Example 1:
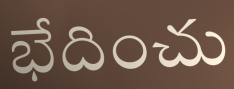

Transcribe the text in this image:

భేదించు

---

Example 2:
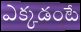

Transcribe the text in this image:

ఎక్కడంటే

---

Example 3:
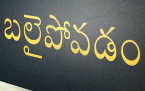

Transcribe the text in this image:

బలైపోవడం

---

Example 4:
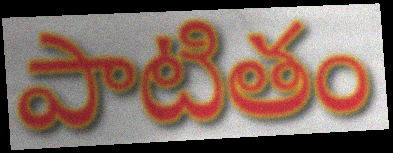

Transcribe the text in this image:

పాటితం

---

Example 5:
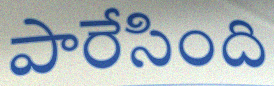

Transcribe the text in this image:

పారేసింది